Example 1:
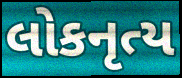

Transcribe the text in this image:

લોકનૃત્ય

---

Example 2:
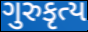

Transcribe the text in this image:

ગુરુકૃત્ય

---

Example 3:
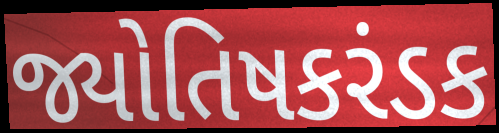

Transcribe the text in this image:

જ્યોતિષકરંડક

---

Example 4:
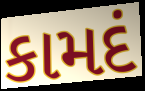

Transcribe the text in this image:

કામદં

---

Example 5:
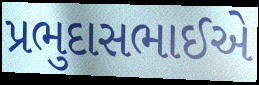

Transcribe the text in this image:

પ્રભુદાસભાઈએ